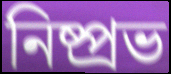
নিষ্প্রভ